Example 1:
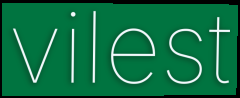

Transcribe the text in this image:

vilest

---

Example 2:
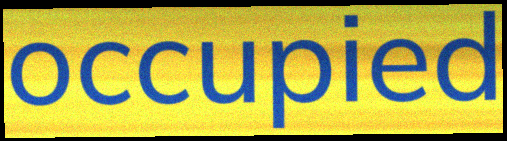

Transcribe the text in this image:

occupied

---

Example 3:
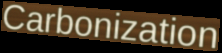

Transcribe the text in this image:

Carbonization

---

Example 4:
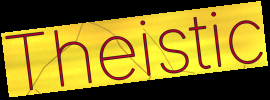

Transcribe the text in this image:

Theistic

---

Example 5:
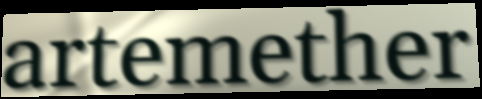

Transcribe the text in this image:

artemether